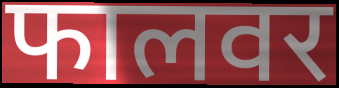
फालवर